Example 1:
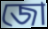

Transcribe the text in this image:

জো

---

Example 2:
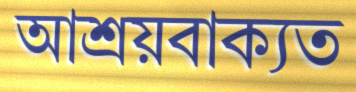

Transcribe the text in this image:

আশ্ৰয়বাক্যত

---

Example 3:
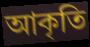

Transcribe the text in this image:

আকৃতি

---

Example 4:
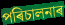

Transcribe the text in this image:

পৰিচালনাৰ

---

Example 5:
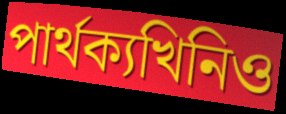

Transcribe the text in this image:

পাৰ্থক্যখিনিও